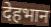
देहभान